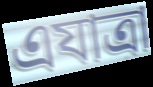
এযাত্রা